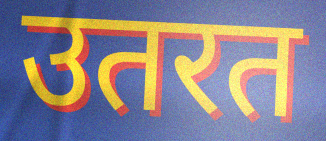
उतरत